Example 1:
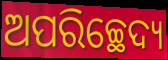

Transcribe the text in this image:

ଅପରିଚ୍ଛେଦ୍ୟ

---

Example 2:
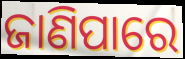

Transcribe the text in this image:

ଜାଣିପାରେ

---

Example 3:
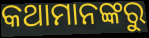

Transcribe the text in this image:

କଥାମାନଙ୍କରୁ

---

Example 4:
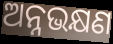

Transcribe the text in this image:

ଅନ୍ନଭକ୍ଷଣ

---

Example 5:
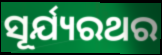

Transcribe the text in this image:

ସୂର୍ଯ୍ୟରଥର